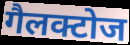
गैलक्टोज